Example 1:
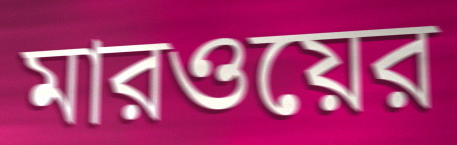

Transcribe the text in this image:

মারওয়ের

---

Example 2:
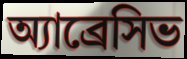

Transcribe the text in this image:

অ্যাব্রেসিভ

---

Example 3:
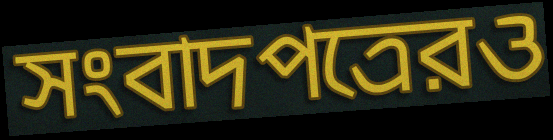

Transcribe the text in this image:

সংবাদপত্রেরও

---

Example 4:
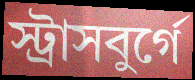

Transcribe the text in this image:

স্ট্রাসবুর্গে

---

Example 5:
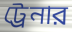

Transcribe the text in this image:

ট্রেনার